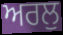
ਅਰਲੁ